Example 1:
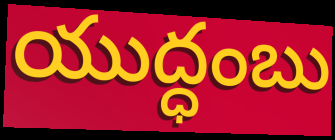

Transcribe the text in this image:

యుద్ధంబు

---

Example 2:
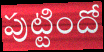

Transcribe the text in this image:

పుట్టిందో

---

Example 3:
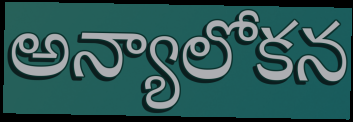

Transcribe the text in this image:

అన్యాలోకన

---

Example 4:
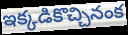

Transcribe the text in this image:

ఇక్కడికొచ్చినంక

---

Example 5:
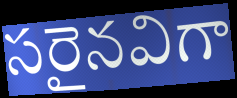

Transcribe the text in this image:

సరైనవిగా